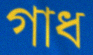
গাধ